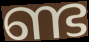
ണ്ട